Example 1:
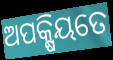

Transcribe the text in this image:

ଅପକ୍ଷିୟତେ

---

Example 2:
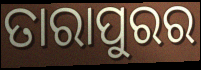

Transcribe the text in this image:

ତାରାପୁରର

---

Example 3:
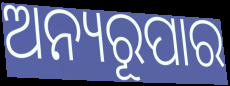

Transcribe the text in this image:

ଅନ୍ୟରୂପାର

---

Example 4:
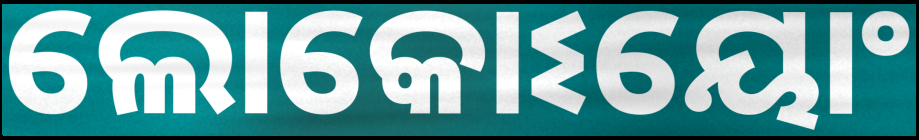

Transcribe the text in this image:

ଲୋକୋଽୟୋଂ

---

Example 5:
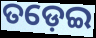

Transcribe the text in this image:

ତଡ଼େଇ